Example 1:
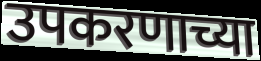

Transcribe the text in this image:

उपकरणाच्या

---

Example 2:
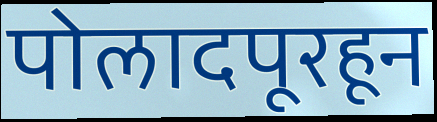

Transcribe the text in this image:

पोलादपूरहून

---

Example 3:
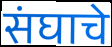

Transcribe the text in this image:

संघाचे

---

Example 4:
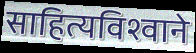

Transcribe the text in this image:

साहित्यविश्वाने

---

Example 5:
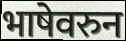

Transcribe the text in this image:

भाषेवरुन